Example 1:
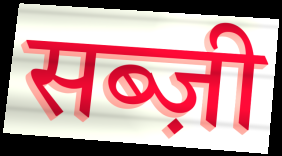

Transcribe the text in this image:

सब्ज़ी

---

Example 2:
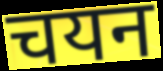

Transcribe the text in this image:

चयन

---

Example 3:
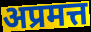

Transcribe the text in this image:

अप्रमत्त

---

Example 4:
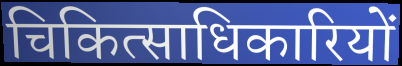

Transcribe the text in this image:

चिकित्साधिकारियों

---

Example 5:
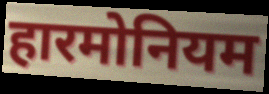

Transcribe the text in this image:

हारमोनियम